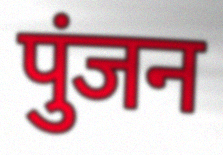
पुंजन